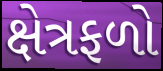
ક્ષેત્રફળો